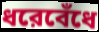
ধরেবেঁধে